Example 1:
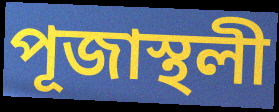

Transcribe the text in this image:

পূজাস্থলী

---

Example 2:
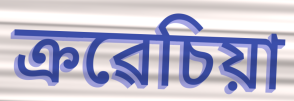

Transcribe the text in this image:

ক্ৰৱেচিয়া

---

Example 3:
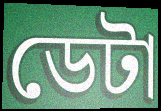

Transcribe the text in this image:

ডেটা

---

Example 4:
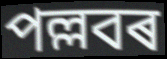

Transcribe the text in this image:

পল্লবৰ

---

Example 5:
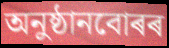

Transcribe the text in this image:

অনুষ্ঠানবোৰৰ